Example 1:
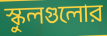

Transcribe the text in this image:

স্কুলগুলোর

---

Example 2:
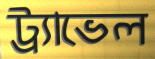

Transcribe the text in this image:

ট্র্যাভেল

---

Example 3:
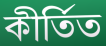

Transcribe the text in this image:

কীর্তিত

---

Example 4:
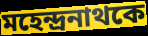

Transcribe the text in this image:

মহেন্দ্রনাথকে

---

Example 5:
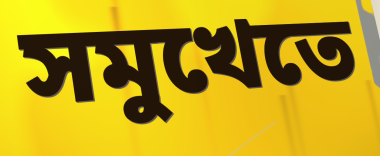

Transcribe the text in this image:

সমুখেতে